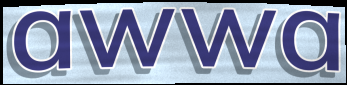
awwa